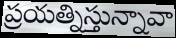
ప్రయత్నిస్తున్నావా